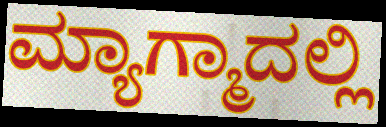
ಮ್ಯಾಗ್ಮಾದಲ್ಲಿ